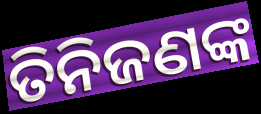
ତିନିଜଣଙ୍କ